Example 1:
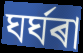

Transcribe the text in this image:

ঘৰ্ঘৰা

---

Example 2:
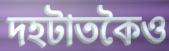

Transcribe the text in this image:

দহটাতকৈও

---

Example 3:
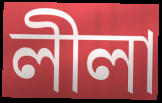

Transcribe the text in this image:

লীলা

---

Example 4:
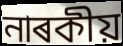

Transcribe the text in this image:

নাৰকীয়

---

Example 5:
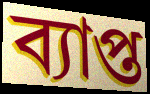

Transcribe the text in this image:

ব্য়াপ্ত